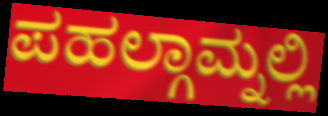
ಪಹಲ್ಗಾಮ್ನಲ್ಲಿ